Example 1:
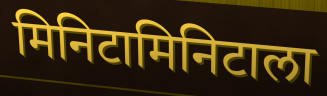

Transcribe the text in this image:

मिनिटामिनिटाला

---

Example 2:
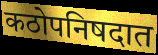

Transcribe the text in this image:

कठोपनिषदात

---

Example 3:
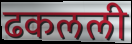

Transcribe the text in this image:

ढकलली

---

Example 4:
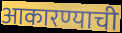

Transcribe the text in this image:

आकारण्याची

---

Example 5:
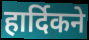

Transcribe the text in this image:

हार्दिकने